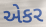
એકર